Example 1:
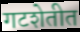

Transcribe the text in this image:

गटशेतीत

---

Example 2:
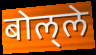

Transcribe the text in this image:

बोल्ले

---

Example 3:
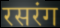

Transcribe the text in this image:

रसरंग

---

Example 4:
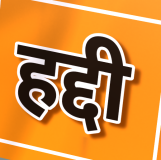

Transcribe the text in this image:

हद्दी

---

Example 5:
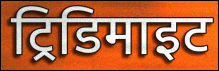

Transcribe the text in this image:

ट्रिडिमाइट